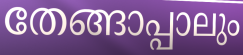
തേങ്ങാപ്പാലും